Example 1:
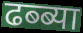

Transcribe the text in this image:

ढब्ब्या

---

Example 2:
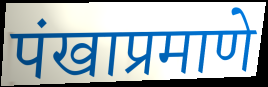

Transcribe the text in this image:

पंखाप्रमाणे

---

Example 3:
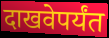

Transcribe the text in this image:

दाखवेपर्यंत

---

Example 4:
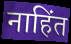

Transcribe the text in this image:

नाहिंत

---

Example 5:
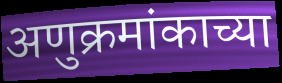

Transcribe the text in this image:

अणुक्रमांकाच्या